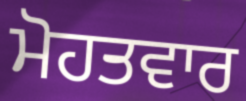
ਮੋਹਤਵਾਰ